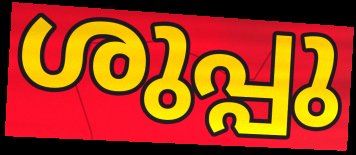
ശുപ്പു